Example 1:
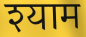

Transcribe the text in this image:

श्याम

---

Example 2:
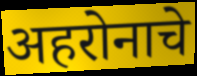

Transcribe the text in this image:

अहरोनाचे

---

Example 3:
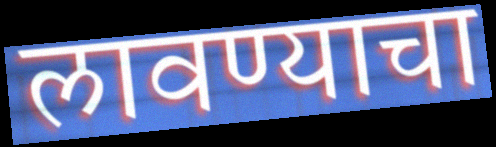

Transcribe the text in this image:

लावण्याचा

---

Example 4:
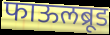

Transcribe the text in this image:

फाऊलब्रूड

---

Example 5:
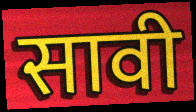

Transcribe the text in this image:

सावी